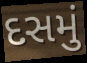
દસમું